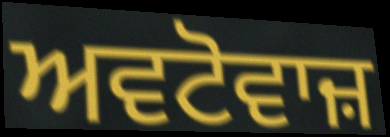
ਅਵਟੋਵਾਜ਼